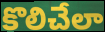
కొలిచేలా